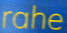
rahe